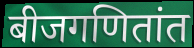
बीजगणितांत